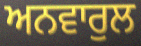
ਅਨਵਾਰੁਲ